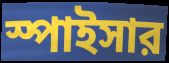
স্পাইসার